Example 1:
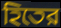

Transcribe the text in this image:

হিতের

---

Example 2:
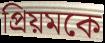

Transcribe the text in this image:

প্রিয়মকে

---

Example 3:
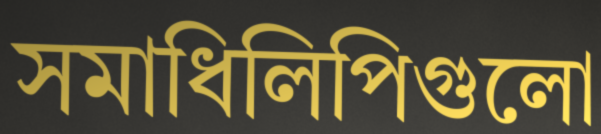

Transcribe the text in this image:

সমাধিলিপিগুলো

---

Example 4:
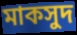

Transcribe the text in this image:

মাকসুদ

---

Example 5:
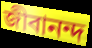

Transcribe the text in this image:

জীবানন্দ